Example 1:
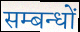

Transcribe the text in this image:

सम्बन्धों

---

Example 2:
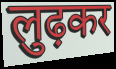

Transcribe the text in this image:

लुढ़कर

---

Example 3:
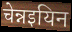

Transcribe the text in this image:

चेन्नइयिन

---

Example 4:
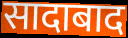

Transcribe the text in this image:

सादाबाद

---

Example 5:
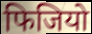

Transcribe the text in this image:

फिजियो